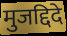
मुजद्दिदे